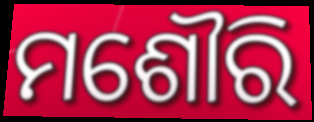
ମଶୌରି